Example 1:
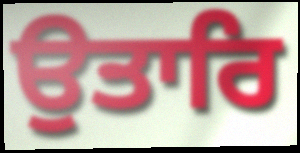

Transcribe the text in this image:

ਉਤਾਰਿ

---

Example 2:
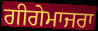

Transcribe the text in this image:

ਗੀਗੇਮਾਜਰਾ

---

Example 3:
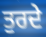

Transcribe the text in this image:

ਤੁਰਦੇ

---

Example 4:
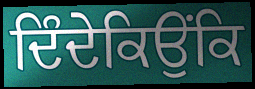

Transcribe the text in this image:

ਦਿੰਦੇਕਿਉਂਕਿ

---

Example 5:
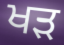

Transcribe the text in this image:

ਖੜ